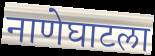
नाणेघाटला